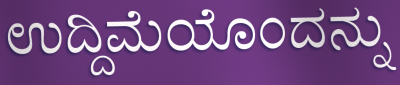
ಉದ್ದಿಮೆಯೊಂದನ್ನು